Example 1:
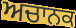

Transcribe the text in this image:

ਅਚਾਨਕ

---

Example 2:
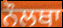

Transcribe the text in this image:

ਨੌਲਥਾ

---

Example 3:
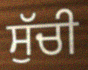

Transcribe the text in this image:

ਸੁੱਚੀ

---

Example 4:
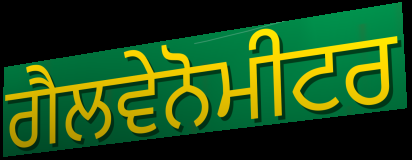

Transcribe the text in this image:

ਗੈਲਵੇਨੋਮੀਟਰ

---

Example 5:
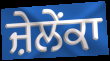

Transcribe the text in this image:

ਜ਼ੇਲੇਂਕਾ